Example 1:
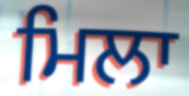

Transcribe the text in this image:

ਮਿਲਾ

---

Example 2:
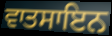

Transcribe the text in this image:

ਵਾਤਸਾਇਨ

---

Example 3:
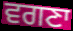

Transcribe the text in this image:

ਵਗਣਾ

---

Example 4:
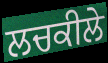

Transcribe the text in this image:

ਲਚਕੀਲੇ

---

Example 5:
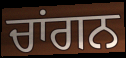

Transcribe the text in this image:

ਚਾਂਗਨ